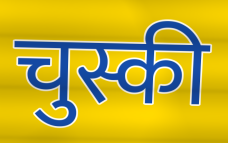
चुस्की